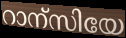
റാന്സിയേ